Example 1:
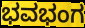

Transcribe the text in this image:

ಭವಭಂಗ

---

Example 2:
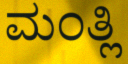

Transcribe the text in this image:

ಮಂತ್ಲಿ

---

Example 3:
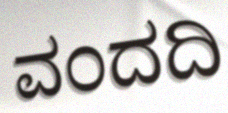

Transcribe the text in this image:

ವಂದದಿ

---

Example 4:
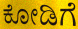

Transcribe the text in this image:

ಕೋಡಿಗೆ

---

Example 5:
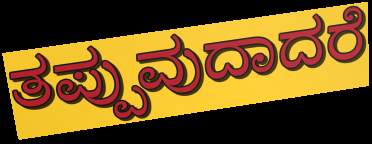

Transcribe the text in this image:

ತಪ್ಪುವುದಾದರೆ